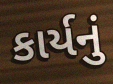
કાર્યનું